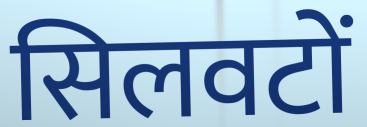
सिलवटों